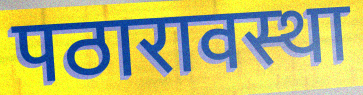
पठारावस्था